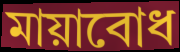
মায়াবোধ